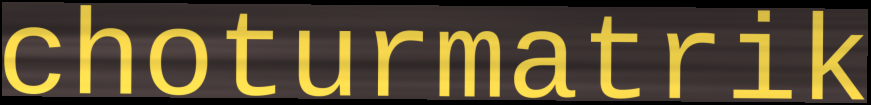
choturmatrik